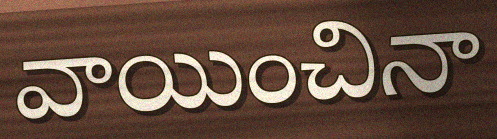
వాయించినా